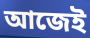
আজেই